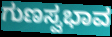
ಗುಣಸ್ವಭಾವ